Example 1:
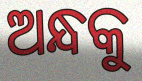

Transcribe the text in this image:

ଅନ୍ଧକୁ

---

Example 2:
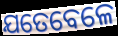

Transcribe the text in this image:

ଯତେବେଳେ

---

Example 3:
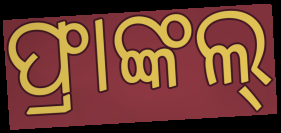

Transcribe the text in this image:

ଫ୍ରାଙ୍କଲ୍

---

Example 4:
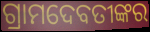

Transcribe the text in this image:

ଗ୍ରାମଦେବତୀଙ୍କର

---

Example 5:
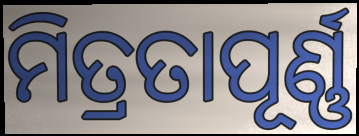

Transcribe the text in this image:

ମିତ୍ରତାପୂର୍ଣ୍ଣ